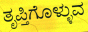
ತೃಪ್ತಿಗೊಳ್ಳುವ